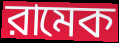
রামেক